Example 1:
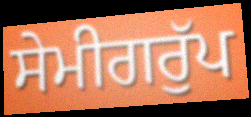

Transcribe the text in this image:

ਸੇਮੀਗਰੁੱਪ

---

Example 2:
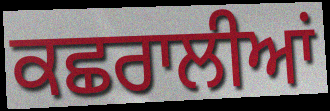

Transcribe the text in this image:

ਕਛਰਾਲੀਆਂ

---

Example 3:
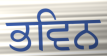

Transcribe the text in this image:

ਭਵਿਨ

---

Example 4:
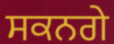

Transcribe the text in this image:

ਸਕਨਗੇ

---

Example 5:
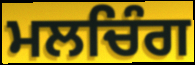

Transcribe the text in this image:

ਮਲਚਿੰਗ